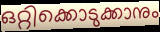
ഒറ്റിക്കൊടുക്കാനും